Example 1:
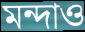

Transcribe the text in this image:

মন্দাও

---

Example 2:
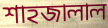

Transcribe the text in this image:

শাহজালাল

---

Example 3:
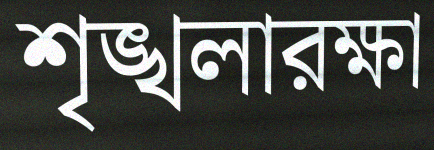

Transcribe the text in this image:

শৃঙ্খলারক্ষা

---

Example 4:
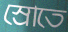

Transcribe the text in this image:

স্রোতে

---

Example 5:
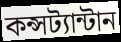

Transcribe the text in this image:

কন্সট্যান্টান